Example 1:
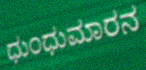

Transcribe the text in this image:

ಧುಂಧುಮಾರನ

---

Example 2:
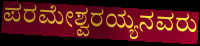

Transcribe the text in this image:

ಪರಮೇಶ್ವರಯ್ಯನವರು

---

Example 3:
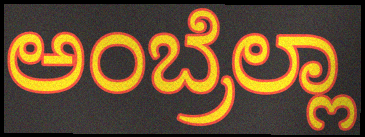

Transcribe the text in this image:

ಅಂಬ್ರೆಲ್ಲಾ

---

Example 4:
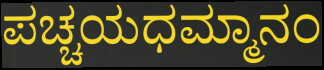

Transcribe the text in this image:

ಪಚ್ಚಯಧಮ್ಮಾನಂ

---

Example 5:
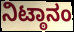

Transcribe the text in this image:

ನಿಟ್ಠಾನಂ